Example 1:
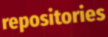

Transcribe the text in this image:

repositories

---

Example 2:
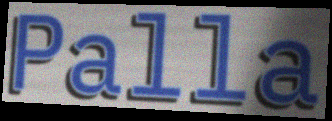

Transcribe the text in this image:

Palla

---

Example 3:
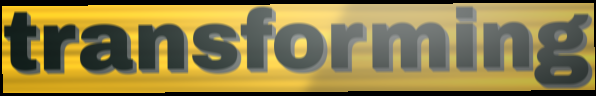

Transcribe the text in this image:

transforming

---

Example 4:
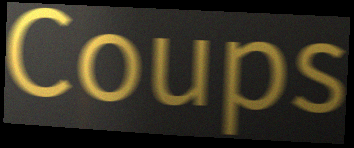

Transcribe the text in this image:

Coups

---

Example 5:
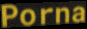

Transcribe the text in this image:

Porna